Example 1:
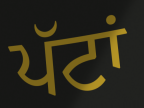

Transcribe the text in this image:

ਪੱਟਾਂ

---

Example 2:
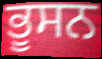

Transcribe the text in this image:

ਭੂਸਨ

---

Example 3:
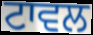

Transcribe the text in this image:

ਟਾਵਲ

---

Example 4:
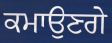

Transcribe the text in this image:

ਕਮਾਉਣਗੇ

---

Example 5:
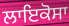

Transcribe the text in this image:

ਲਾਇਕੋਸਾ